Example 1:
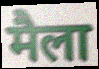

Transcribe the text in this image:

मैला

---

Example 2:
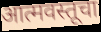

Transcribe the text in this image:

आत्मवस्तूचा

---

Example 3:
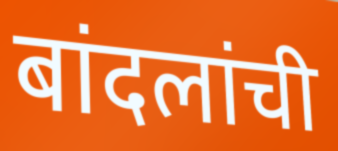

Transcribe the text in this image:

बांदलांची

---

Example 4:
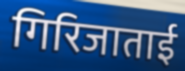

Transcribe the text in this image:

गिरिजाताई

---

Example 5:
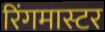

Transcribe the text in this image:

रिंगमास्टर